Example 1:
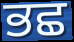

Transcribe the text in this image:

ਭਛ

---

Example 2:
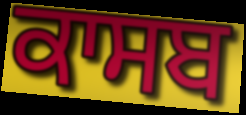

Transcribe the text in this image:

ਕਾਸਬ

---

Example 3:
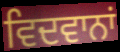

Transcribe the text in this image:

ਵਿਦਵਾਨਾਂ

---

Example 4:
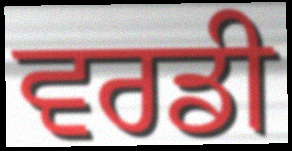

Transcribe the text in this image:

ਵਰਡੀ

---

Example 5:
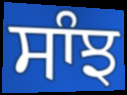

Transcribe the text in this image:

ਸਾੰਝ